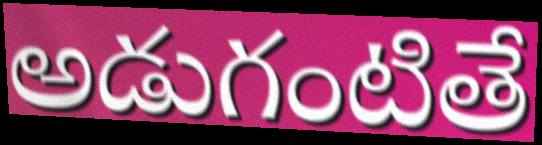
అడుగంటితే